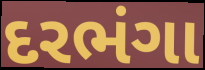
દરભંગા